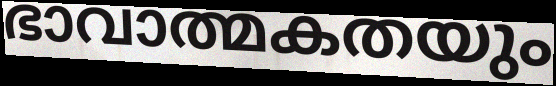
ഭാവാത്മകതയും